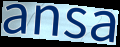
ansa